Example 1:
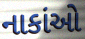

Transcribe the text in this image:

નાકાંઓ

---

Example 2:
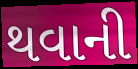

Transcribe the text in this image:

થવાની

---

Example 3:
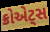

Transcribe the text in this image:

ક્રોએટ્સ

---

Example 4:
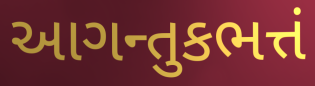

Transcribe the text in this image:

આગન્તુકભત્તં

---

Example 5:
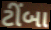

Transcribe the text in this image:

ટીંબા